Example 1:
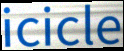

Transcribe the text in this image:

icicle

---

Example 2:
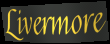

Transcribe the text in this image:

Livermore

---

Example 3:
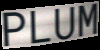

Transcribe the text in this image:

PLUM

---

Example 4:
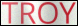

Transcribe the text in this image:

TROY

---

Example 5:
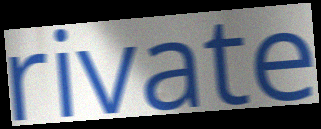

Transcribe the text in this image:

rivate